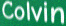
Colvin